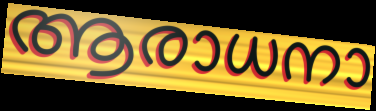
ആരാധനാ